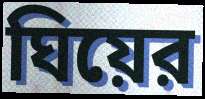
ঘিয়ের